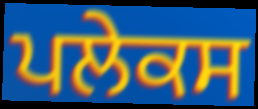
ਪਲੇਕਸ